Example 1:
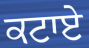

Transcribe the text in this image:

ਕਟਾਏ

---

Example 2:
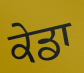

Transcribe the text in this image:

ਕੇਡਾ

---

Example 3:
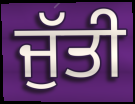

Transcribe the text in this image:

ਜੁੱਤੀ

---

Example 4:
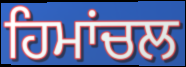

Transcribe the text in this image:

ਹਿਮਾਂਚਲ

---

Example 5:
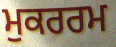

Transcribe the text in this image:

ਮੁਕਰਰਮ